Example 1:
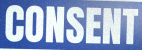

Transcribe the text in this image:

CONSENT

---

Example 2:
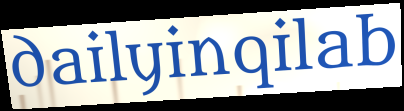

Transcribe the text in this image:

dailyinqilab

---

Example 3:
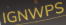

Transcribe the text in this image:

IGNWPS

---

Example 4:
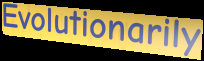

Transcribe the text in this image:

Evolutionarily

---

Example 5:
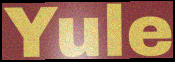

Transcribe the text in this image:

Yule